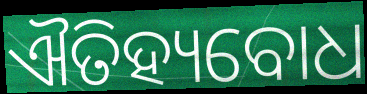
ଐତିହ୍ୟବୋଧ